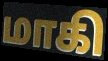
மாகி